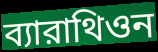
ব্যারাথিওন